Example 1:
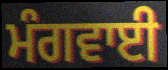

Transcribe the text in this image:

ਮੰਗਵਾਈ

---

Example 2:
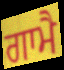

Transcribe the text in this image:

ਗਾਮੈ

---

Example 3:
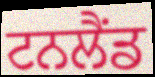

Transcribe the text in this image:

ਟਨਲੈਂਡ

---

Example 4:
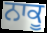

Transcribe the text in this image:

ਨਾਕੂ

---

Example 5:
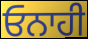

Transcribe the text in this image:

ਓਨਾਹੀ